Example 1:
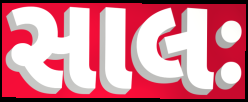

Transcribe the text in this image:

સાલઃ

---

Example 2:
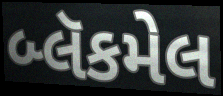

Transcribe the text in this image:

બ્લૅકમેલ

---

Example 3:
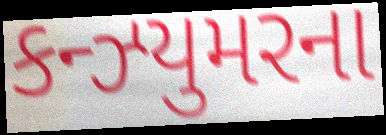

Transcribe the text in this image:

કન્ઝ્યુમરના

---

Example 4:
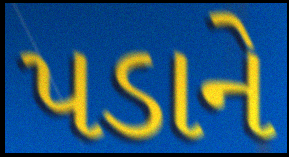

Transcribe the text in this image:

પડાને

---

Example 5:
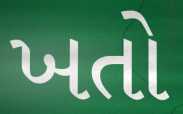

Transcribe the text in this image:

ખતો